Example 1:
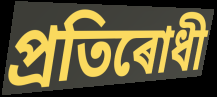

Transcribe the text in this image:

প্ৰতিৰোধী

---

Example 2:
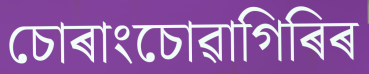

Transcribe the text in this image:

চোৰাংচোৱাগিৰিৰ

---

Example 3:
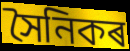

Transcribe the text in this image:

সৈনিকৰ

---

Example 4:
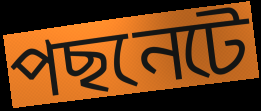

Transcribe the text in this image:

পছনেটে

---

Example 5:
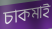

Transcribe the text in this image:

চাকমাই